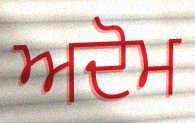
ਅਦੋਮ